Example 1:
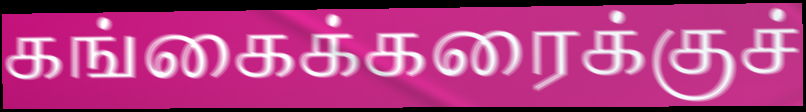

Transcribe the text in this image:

கங்கைக்கரைக்குச்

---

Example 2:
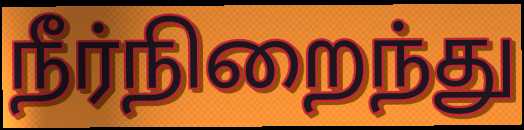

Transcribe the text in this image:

நீர்நிறைந்து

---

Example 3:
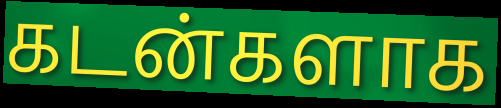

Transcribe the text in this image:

கடன்களாக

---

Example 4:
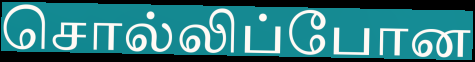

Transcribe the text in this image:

சொல்லிப்போன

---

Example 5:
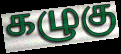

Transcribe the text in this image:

கழுகு